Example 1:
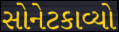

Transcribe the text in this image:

સોનેટકાવ્યો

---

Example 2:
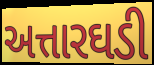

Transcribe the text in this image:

અત્તારઘડી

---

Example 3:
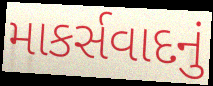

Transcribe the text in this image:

માકર્સવાદનું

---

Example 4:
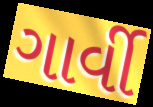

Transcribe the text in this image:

ગાર્વી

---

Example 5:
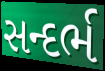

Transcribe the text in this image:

સન્દર્ભ